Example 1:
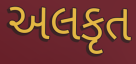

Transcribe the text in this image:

અલકૃત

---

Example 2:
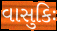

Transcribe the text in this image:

વાસુકિઃ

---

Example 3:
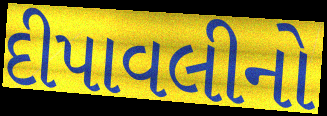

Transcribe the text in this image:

દીપાવલીનો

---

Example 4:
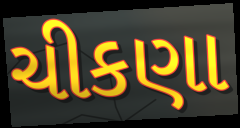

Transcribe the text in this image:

ચીકણા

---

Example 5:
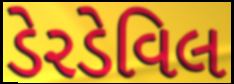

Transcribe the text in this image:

ડેરડેવિલ